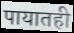
पायातही